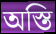
অস্তি